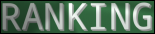
RANKING